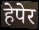
हेपेर